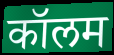
कॉलम